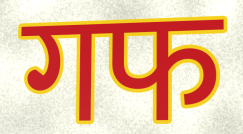
गफ